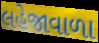
લહેજાવાળા